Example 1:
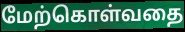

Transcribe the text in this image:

மேற்கொள்வதை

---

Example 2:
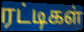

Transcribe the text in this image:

ரட்டிகள்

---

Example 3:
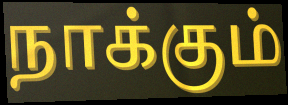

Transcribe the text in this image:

நாக்கும்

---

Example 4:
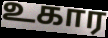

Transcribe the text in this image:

உகார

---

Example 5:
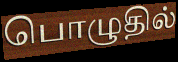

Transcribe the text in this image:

பொழுதில்